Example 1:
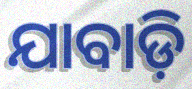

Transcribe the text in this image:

ଯାବାଡ଼ି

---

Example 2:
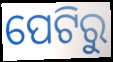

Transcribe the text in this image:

ପେଟିରୁ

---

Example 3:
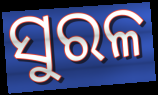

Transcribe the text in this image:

ସୁରଳ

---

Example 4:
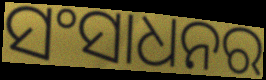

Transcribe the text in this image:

ସଂସାଧନର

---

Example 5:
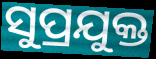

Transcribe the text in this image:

ସୁପ୍ରଯୁକ୍ତ